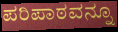
ಪರಿಪಾಠವನ್ನೂ